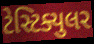
ટેસ્ટિક્યુલર